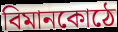
বিমানকোঠে